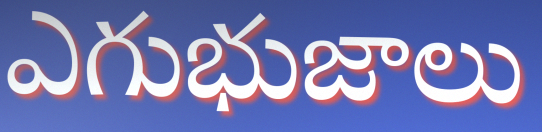
ఎగుభుజాలు